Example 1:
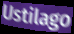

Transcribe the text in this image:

Ustilago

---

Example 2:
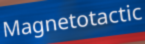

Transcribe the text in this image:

Magnetotactic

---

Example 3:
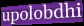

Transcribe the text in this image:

upolobdhi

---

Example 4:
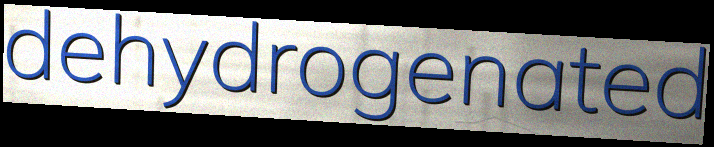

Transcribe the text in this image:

dehydrogenated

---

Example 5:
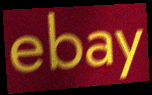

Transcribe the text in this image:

ebay